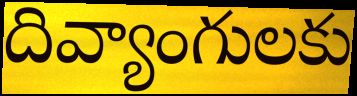
దివ్యాంగులకు